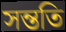
সন্ততি